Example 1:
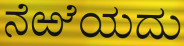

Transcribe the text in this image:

ನೆಱೆಯದು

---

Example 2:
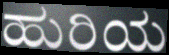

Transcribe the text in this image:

ಹುರಿಯ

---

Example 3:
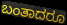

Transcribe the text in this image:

ಬಂತಾದರೂ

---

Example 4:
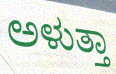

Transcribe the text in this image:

ಅಳುತ್ತಾ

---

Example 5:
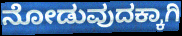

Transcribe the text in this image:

ನೋಡುವುದಕ್ಕಾಗಿ